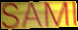
SAMI